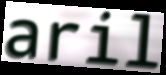
aril